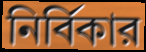
নির্বিকার